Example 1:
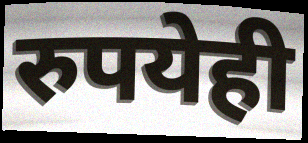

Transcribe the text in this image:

रुपयेही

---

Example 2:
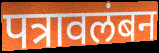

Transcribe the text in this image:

पत्रावलंबन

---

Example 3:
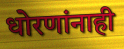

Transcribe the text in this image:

धोरणांनाही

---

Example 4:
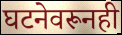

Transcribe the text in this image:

घटनेवरूनही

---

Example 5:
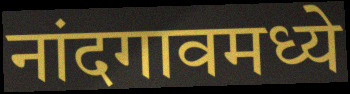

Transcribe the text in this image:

नांदगावमध्ये